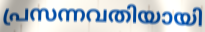
പ്രസന്നവതിയായി